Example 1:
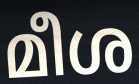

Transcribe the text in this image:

മീശ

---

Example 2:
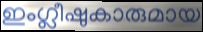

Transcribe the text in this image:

ഇംഗ്ലീഷുകാരുമായ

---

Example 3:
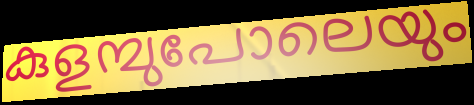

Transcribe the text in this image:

കുളമ്പുപോലെയും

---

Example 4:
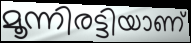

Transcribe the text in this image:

മൂന്നിരട്ടിയാണ്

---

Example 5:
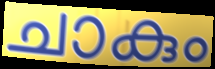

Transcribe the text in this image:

ചാകും